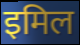
इमिल